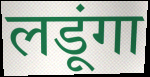
लडूंगा